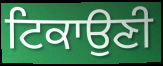
ਟਿਕਾਉਣੀ